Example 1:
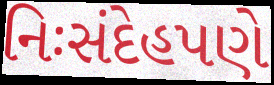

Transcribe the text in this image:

નિઃસંદેહપણે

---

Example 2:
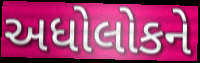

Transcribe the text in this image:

અધોલોકને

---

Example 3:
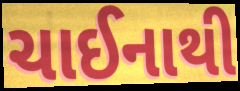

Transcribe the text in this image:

ચાઈનાથી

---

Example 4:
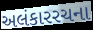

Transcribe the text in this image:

અલંકારરચના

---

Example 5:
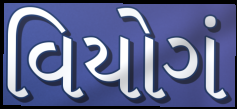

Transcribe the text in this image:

વિયોગં